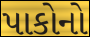
પાકોનો